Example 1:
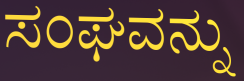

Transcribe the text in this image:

ಸಂಘವನ್ನು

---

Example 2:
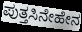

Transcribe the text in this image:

ಪುತ್ತಸಿನೇಹೇನ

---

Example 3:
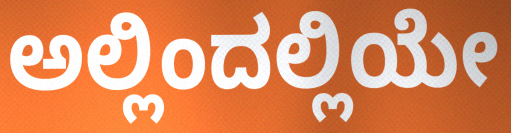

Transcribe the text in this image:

ಅಲ್ಲಿಂದಲ್ಲಿಯೇ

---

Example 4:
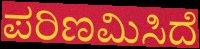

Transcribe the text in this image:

ಪರಿಣಮಿಸಿದೆ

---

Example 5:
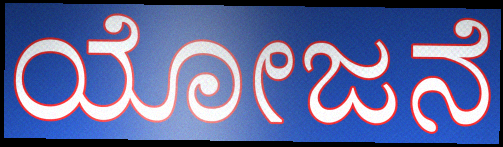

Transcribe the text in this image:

ಯೋಜನೆ